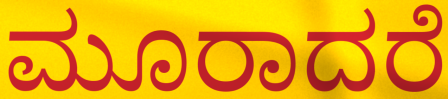
ಮೂರಾದರೆ